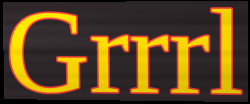
Grrrl